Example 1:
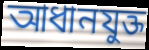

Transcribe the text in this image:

আধানযুক্ত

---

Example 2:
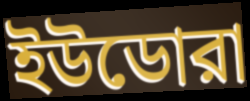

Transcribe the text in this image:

ইউডোরা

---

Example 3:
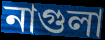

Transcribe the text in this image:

নাগুলা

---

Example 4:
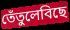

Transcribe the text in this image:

তেঁতুলেবিছে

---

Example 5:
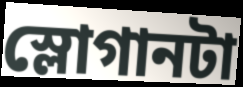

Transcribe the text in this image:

স্লোগানটা